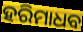
ହରିମାଧବ